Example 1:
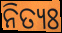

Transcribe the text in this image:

ନିତ୍ଯଃ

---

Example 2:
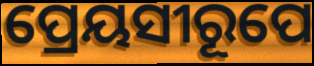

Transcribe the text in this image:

ପ୍ରେୟସୀରୂପେ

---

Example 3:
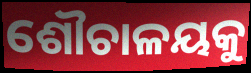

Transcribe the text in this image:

ଶୌଚାଳୟକୁ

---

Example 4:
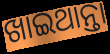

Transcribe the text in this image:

ଖାଇଥାନ୍ତା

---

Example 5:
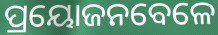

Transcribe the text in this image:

ପ୍ରୟୋଜନବେଳେ